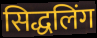
सिद्धलिंग